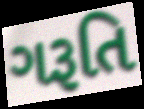
ગરૂતિ